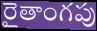
రైతాంగపు